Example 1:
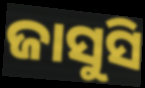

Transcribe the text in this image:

ଜାସୁସି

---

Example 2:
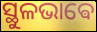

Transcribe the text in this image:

ସ୍ଥୁଳଭାଵେ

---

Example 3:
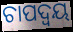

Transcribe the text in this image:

ଚାପଦ୍ଵୟ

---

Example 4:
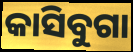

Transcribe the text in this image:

କାସିବୁଗା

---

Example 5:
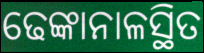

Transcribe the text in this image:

ଢେଙ୍କାନାଳସ୍ଥିତ